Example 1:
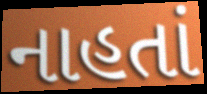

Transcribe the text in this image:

નાહતાં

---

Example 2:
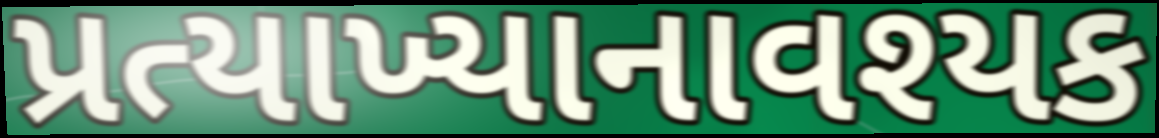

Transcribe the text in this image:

પ્રત્યાખ્યાનાવશ્યક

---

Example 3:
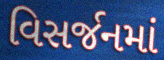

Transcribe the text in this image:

વિસર્જનમાં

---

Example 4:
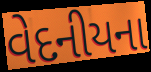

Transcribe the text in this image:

વેદનીયના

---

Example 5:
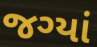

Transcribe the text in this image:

જગ્યાં